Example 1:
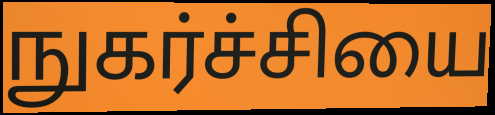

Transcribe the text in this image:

நுகர்ச்சியை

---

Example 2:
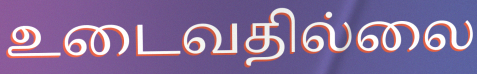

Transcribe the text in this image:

உடைவதில்லை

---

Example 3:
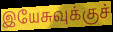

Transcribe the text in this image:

இயேசுவுக்குச்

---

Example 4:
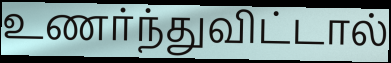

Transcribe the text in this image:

உணர்ந்துவிட்டால்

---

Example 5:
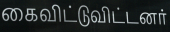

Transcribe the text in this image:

கைவிட்டுவிட்டனர்